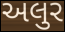
અલુર